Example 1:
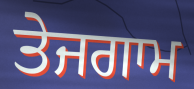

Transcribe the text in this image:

ਤੇਜਗਾਮ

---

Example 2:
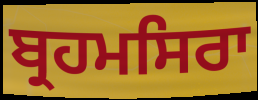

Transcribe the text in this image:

ਬ੍ਰਹਮਸਿਰਾ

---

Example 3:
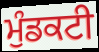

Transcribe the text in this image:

ਮੁੰਡਕਟੀ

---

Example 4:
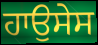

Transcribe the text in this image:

ਹਾਉਸੇਸ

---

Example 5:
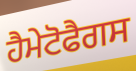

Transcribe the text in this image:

ਹੈਮੇਟੋਫੈਗਸ